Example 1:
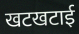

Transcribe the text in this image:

खटखटाई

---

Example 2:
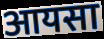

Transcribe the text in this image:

आयसा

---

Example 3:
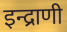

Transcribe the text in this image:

इन्द्राणी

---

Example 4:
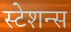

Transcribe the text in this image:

स्टेशन्स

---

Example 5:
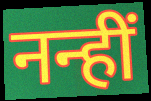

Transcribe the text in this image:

नन्‍हीं